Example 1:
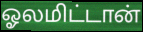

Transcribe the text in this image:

ஓலமிட்டான்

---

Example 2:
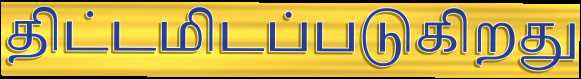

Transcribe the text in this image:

திட்டமிடப்படுகிறது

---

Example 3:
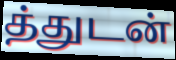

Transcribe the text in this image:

த்துடன்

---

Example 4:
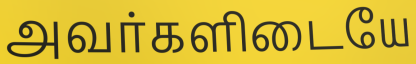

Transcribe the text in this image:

அவர்களிடையே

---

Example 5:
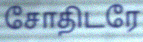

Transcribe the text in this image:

சோதிடரே